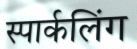
स्पार्कलिंग